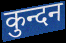
कुन्दन